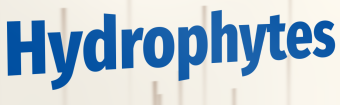
Hydrophytes